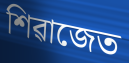
শিৱাজেত